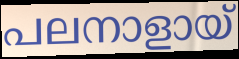
പലനാളായ്